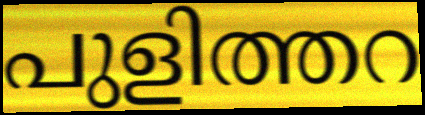
പുളിത്തറ